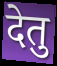
देतु